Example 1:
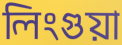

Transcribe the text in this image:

লিংগুয়া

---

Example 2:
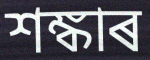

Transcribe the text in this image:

শঙ্কাৰ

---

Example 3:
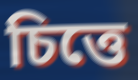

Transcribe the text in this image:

চিত্তে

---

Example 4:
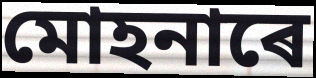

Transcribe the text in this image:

মোহনাৰে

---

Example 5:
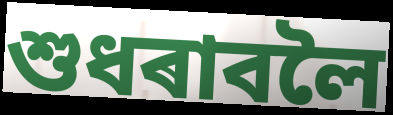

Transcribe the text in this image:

শুধৰাবলৈ